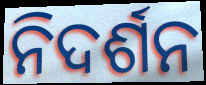
ନିଦର୍ଶନ